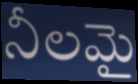
నీలమై